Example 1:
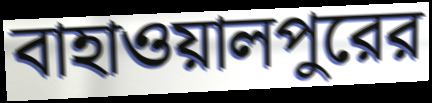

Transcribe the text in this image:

বাহাওয়ালপুরের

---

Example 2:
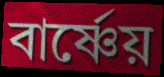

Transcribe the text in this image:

বার্ষ্ণেয়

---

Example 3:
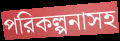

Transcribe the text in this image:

পরিকল্পনাসহ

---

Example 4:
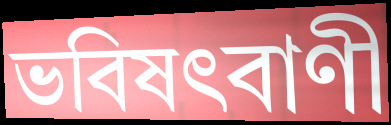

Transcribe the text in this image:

ভবিষৎবাণী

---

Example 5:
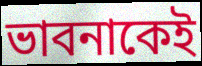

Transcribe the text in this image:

ভাবনাকেই